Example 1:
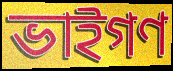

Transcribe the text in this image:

ভাইগণ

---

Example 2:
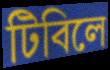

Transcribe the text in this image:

টিবিলে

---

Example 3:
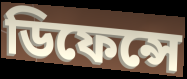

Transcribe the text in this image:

ডিফেন্সে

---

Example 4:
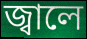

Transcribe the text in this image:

জ্বালে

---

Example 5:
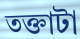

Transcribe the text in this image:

তক্তাটা